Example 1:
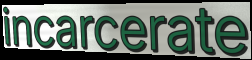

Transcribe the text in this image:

incarcerate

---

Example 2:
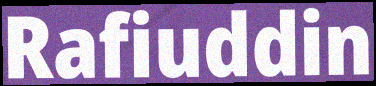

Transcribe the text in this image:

Rafiuddin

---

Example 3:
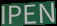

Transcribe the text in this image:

IPEN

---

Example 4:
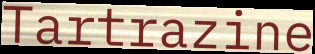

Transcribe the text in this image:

Tartrazine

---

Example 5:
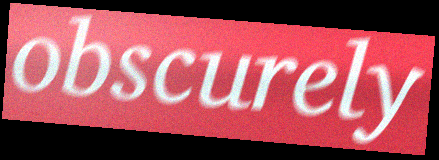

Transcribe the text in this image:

obscurely